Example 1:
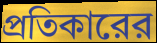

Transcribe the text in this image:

প্রতিকারের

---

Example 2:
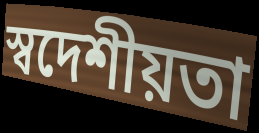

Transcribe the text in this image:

স্বদেশীয়তা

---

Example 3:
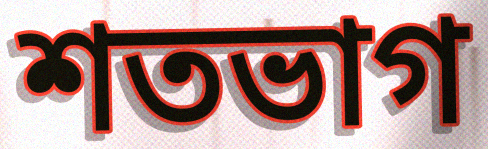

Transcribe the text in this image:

শতভাগ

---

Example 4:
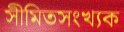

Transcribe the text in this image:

সীমিতসংখ্যক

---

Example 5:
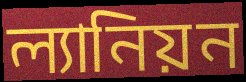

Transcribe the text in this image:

ল্যানিয়ন